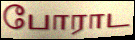
போராட